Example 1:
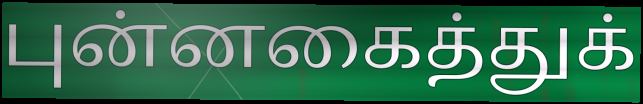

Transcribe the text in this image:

புன்னகைத்துக்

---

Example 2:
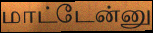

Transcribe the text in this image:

மாட்டேன்னு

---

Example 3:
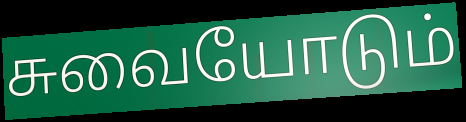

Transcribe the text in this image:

சுவையோடும்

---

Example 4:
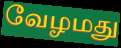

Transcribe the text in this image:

வேழமது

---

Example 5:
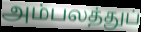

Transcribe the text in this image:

அம்பலத்துப்